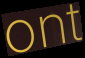
ont